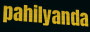
pahilyanda